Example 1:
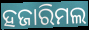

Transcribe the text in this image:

ହଜାରିମଲ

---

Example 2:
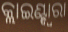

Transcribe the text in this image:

କ୍ଲାଇଣ୍ଟ୍ଦ୍ୱାରା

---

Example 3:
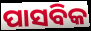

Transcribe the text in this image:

ପାସବିକ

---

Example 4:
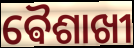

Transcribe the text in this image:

ଵୈଶାଖୀ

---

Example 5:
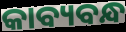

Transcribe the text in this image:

କାବ୍ୟବନ୍ଧ